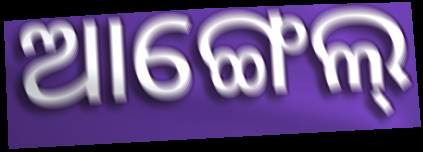
ଆଙ୍ଗେଲ୍